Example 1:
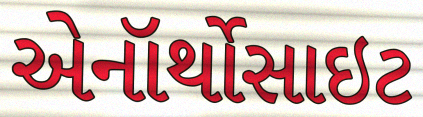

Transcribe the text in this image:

એનૉર્થોસાઇટ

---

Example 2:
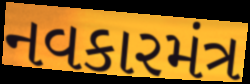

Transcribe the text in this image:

નવકારમંત્ર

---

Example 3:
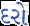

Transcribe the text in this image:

દરો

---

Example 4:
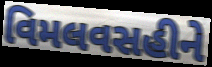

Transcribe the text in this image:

વિમલવસહીને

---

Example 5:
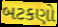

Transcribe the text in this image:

બટકણો